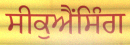
ਸੀਕੁਐਂਸਿੰਗ